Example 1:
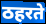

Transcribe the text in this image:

ठहरते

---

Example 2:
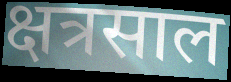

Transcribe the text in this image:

क्षत्रसाल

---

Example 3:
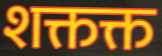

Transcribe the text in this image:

शक्तक्त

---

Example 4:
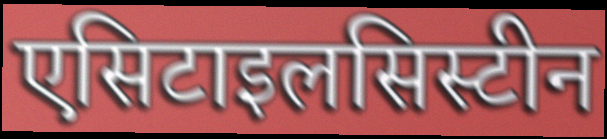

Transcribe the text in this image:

एसिटाइलसिस्टीन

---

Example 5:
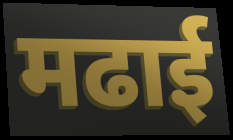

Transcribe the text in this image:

मढाई